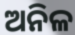
ଅନିଳ